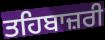
ਤਹਿਬਾਜ਼ਰੀ